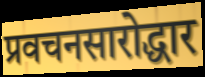
प्रवचनसारोद्धार